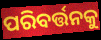
ପରିବର୍ତ୍ତନକୁ